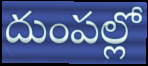
దుంపల్లో